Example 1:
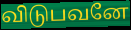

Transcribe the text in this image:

விடுபவனே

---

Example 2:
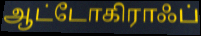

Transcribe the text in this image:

ஆட்டோகிராஃப்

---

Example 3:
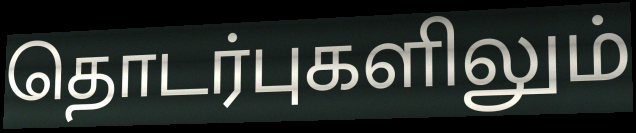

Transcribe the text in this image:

தொடர்புகளிலும்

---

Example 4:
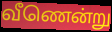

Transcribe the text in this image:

வீணென்று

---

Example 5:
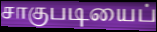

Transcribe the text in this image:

சாகுபடியைப்